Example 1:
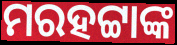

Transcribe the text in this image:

ମରହଟ୍ଟାଙ୍କ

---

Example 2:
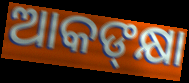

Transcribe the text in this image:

ଆକଙ୍‌କ୍ଷା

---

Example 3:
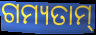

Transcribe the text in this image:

ଗମ୍ୟତାମ୍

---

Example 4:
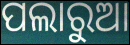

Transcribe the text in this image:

ପଲାରୁଆ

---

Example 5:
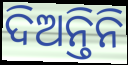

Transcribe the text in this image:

ଦିଅନ୍ତିନି